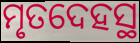
ମୃତଦେହସ୍ଥ